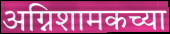
अग्निशामकच्या